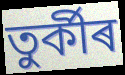
তুৰ্কীৰ